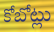
కోబోట్లు